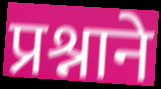
प्रश्नाने